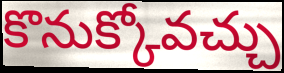
కొనుక్కోవచ్చు